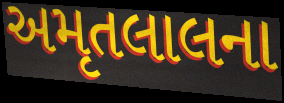
અમૃતલાલના